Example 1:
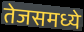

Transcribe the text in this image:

तेजसमध्ये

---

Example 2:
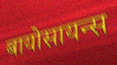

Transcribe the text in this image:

बायोसायन्स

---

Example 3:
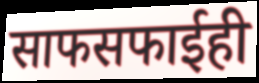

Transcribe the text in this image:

साफसफाईही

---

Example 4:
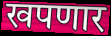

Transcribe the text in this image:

खपणार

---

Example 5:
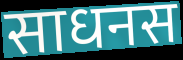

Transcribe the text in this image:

साधनस